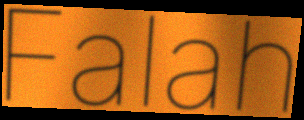
Falah